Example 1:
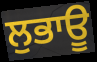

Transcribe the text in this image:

ਲੁਭਾਊ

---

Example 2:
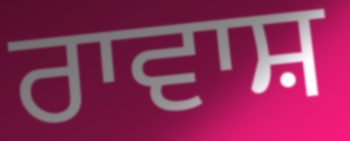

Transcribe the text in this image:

ਰਾਵਾਸ਼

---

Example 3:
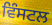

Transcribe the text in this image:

ਵਿੰਸਟਲ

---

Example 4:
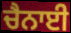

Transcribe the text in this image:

ਚੈਨਾਈ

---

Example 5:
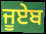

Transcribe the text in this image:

ਜੂਏਬ